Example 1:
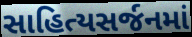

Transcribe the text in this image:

સાહિત્યસર્જનમાં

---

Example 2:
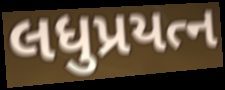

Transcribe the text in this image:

લધુપ્રયત્ન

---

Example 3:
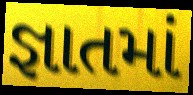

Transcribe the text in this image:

જ્ઞાતમાં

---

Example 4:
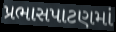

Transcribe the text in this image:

પ્રભાસપાટણમાં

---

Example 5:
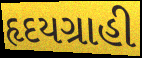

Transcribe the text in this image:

હૃદયગ્રાહી